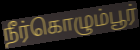
நீர்கொழும்பூர்